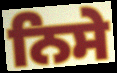
ਨਿਸੇ